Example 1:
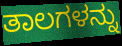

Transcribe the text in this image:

ತಾಲಗಳನ್ನು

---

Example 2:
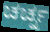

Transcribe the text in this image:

ಚರ್ಚ್ನ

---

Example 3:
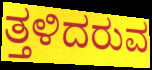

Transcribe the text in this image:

ತ್ತಳಿದರುವ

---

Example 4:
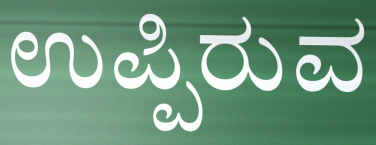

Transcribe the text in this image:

ಉಪ್ಪಿರುವ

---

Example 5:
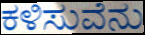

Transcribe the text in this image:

ಕಳಿಸುವೆನು